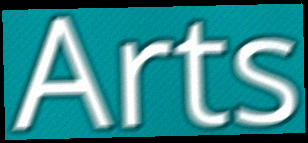
Arts